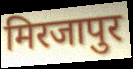
मिरजापुर